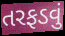
તરફડવું